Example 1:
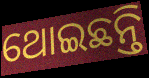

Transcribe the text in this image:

ଥୋଇଛନ୍ତି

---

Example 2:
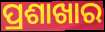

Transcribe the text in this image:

ପ୍ରଶାଖାର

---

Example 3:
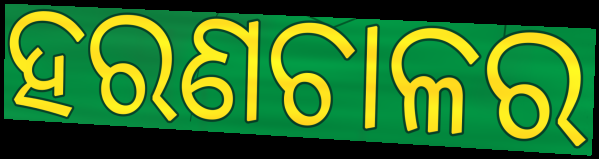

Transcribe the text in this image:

ହରଣଚାଳର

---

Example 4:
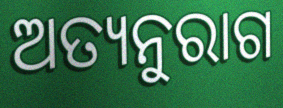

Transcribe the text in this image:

ଅତ୍ୟନୁରାଗ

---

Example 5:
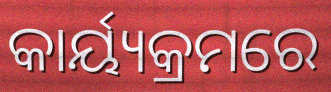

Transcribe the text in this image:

କାର୍ୟ୍ୟକ୍ରମରେ